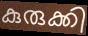
കുരുക്കി